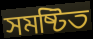
সমষ্টিত